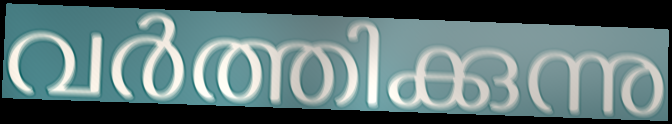
വർത്തിക്കുന്നു